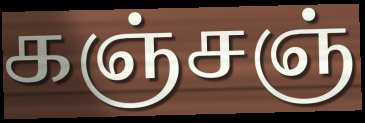
கஞ்சஞ்